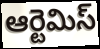
ఆర్టెమిస్